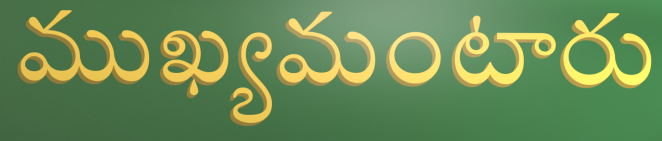
ముఖ్యమంటారు